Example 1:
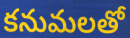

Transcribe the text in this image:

కనుమలతో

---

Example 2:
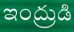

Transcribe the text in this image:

ఇంద్రుడి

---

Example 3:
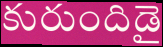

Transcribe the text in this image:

కురుందిడై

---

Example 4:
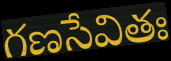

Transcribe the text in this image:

గణసేవితః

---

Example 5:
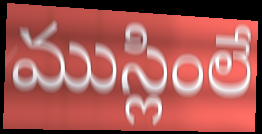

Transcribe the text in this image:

ముస్లింలే